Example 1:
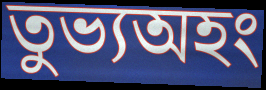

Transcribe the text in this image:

তুভ্যঅহং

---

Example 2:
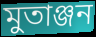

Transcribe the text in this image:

মুতাঞ্জন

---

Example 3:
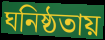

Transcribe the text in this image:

ঘনিষ্ঠতায়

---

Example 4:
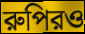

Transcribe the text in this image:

রুপিরও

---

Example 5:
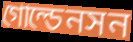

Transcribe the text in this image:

গোল্ডেনসন